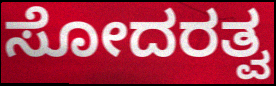
ಸೋದರತ್ವ